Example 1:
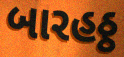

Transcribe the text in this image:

બારહઠ્ઠ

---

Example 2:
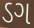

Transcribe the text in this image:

ડગ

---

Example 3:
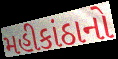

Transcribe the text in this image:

મહીકાંઠાનો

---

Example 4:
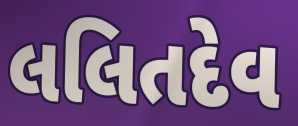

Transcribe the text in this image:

લલિતદેવ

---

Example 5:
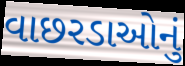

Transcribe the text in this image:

વાછરડાઓનું